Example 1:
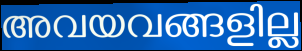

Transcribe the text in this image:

അവയവങ്ങളില്ല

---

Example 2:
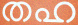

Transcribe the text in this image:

തഹ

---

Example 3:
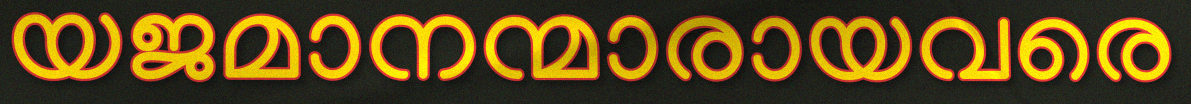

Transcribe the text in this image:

യജമാനന്മാരായവരെ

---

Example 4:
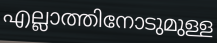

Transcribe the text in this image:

എല്ലാത്തിനോടുമുള്ള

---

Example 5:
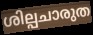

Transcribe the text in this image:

ശില്പചാരുത